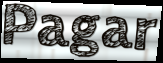
Pagar